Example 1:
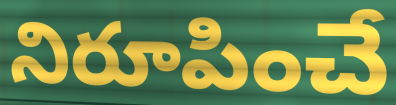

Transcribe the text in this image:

నిరూపించే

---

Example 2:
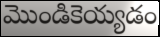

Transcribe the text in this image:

మొండికెయ్యడం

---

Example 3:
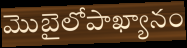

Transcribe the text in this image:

మొబైలోపాఖ్యానం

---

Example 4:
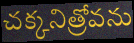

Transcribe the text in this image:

చక్కనిత్రోవను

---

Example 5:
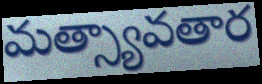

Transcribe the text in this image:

మత్స్యావతార